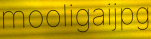
mooligaijpg